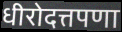
धीरोदत्तपणा